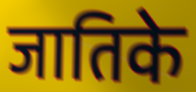
जातिके